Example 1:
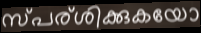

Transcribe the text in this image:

സ്പര്ശിക്കുകയോ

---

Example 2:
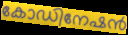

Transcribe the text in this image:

കോഡിനേഷൻ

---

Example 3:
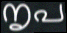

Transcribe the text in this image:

നൃപ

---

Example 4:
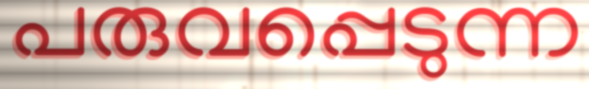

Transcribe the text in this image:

പരുവപ്പെടുന്ന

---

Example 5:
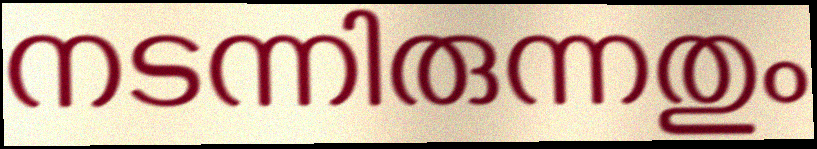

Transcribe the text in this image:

നടന്നിരുന്നതും